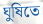
ঘুষিতে